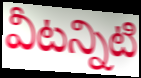
వీటన్నిటి